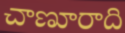
చాణూరాది